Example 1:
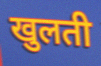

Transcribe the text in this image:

खुलती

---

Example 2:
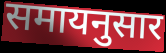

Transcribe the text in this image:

समायनुसार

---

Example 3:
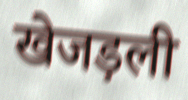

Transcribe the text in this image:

खेजड़ली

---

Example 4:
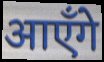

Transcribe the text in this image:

आएँगे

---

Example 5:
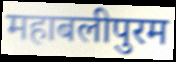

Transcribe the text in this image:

महाबलीपुरम